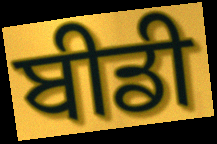
ਬੀਡੀ